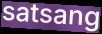
satsang